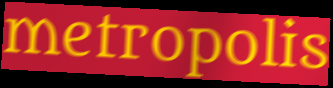
metropolis